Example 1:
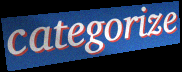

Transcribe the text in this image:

categorize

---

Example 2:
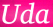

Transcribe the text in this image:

Uda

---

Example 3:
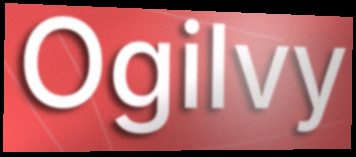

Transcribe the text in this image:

Ogilvy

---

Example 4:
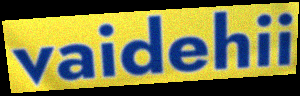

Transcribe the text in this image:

vaidehii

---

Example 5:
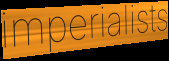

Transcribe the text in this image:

imperialists